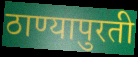
ठाण्यापुरती